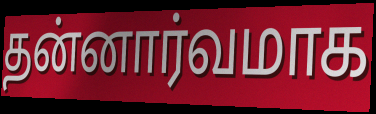
தன்னார்வமாக